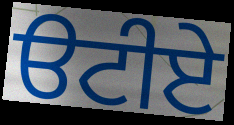
ੳਟੀਏ